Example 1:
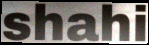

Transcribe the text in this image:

shahi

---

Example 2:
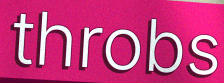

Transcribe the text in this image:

throbs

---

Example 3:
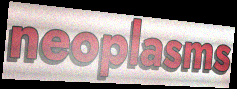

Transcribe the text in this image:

neoplasms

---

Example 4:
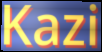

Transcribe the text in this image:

Kazi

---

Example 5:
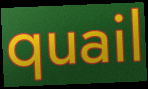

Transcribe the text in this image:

quail